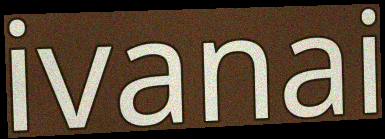
ivanai